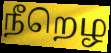
நீறெழ